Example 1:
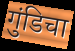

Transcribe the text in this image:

गुंडिचा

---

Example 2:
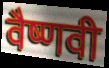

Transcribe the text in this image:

वैष्णवी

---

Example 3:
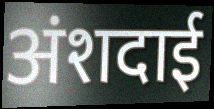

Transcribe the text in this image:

अंशदाई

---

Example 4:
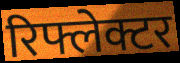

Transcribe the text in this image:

रिफ्लेक्टर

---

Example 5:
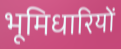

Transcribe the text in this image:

भूमिधारियों